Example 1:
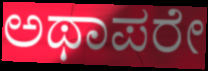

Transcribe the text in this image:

ಅಥಾಪರೇ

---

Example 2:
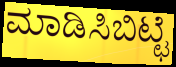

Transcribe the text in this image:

ಮಾಡಿಸಿಬಿಟ್ಟೆ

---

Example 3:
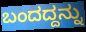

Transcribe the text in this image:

ಬಂದದ್ದನ್ನು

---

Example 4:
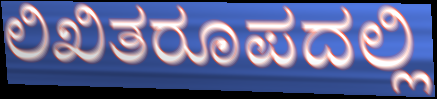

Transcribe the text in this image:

ಲಿಖಿತರೂಪದಲ್ಲಿ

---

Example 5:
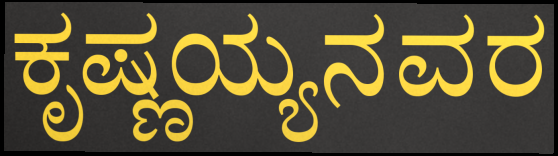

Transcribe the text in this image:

ಕೃಷ್ಣಯ್ಯನವರ